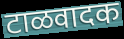
टाळवादक